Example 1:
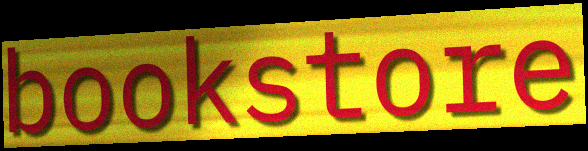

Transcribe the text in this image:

bookstore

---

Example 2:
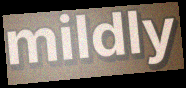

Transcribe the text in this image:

mildly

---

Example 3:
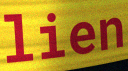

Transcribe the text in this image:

lien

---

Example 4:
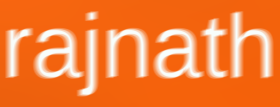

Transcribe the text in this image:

rajnath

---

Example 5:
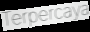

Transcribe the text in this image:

Terpercaya